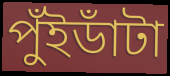
পুঁইডাঁটা